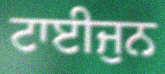
ਟਾਈਜੁਨ